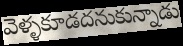
వెళ్ళకూడదనుకున్నాడు